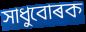
সাধুবোৰক